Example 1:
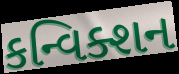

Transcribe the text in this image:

કન્વિક્શન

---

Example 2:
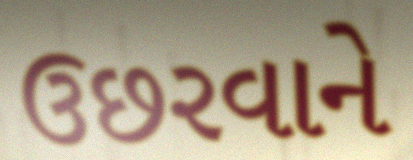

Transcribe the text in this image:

ઉછરવાને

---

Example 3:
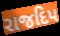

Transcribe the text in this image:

રાજદિપ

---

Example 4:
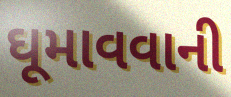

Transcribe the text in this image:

ઘૂમાવવાની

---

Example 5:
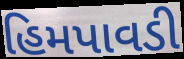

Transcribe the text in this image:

હિમપાવડી